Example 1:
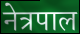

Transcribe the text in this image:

नेत्रपाल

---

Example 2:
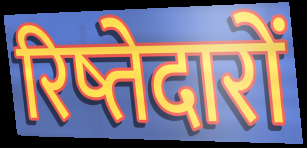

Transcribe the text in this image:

रिष्तेदारों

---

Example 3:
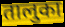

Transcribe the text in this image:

तालुका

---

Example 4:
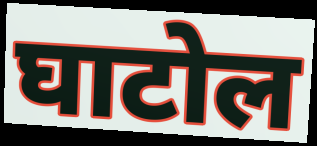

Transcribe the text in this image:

घाटोल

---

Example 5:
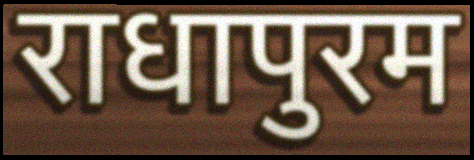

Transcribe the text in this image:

राधापुरम